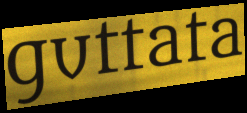
guttata